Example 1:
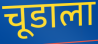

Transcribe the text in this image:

चूडाला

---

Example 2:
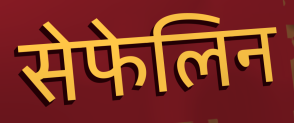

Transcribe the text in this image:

सेफेलिन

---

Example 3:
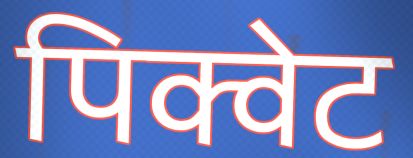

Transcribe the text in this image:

पिक्वेट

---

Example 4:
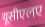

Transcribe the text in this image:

यूसीएलए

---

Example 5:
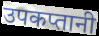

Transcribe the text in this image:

उपकप्तानी